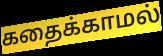
கதைக்காமல்